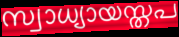
സ്വാധ്യായസ്തപ